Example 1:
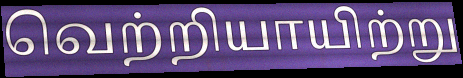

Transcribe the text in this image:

வெற்றியாயிற்று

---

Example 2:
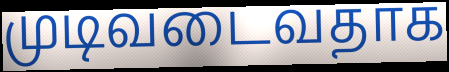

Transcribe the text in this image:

முடிவடைவதாக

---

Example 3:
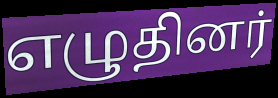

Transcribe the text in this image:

எழுதினர்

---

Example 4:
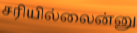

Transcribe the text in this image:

சரியில்லைன்னு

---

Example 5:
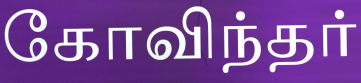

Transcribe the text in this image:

கோவிந்தர்